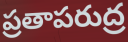
ప్రతాపరుద్ర